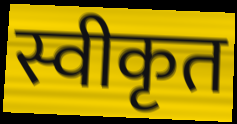
स्‍वीकृत